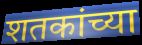
शतकांच्या